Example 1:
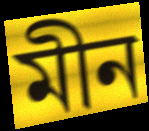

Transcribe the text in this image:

মীন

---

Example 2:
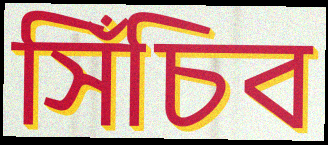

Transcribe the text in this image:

সিঁচিব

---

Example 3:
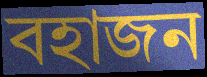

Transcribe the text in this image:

বহাজন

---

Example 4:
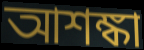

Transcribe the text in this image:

আশঙ্কা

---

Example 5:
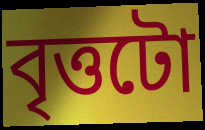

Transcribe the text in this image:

বৃত্তটো